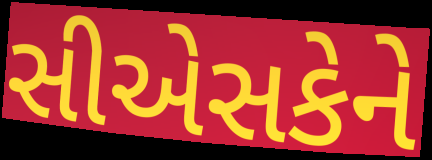
સીએસકેને